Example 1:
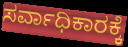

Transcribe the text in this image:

ಸರ್ವಾಧಿಕಾರಕ್ಕೆ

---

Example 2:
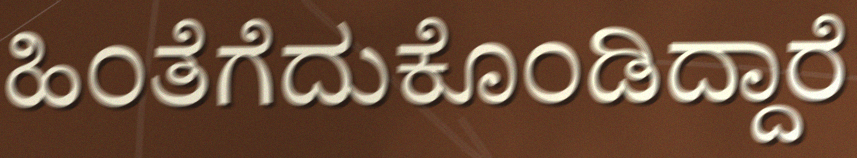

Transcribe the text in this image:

ಹಿಂತೆಗೆದುಕೊಂಡಿದ್ದಾರೆ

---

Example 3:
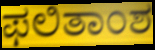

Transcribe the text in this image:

ಫಲಿತಾಂಶ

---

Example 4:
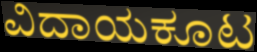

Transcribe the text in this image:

ವಿದಾಯಕೂಟ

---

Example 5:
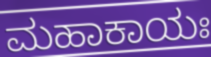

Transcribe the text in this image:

ಮಹಾಕಾಯಃ